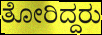
ತೋರಿದ್ದರು